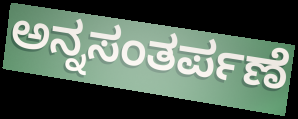
ಅನ್ನಸಂತರ್ಪಣೆ